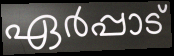
ഏർപ്പാട്